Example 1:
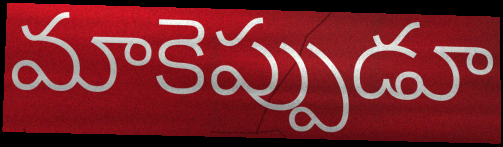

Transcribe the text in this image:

మాకెప్పుడూ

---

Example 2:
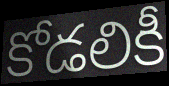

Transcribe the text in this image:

కోడలికీ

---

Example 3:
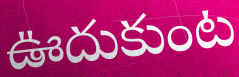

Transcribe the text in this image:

ఊదుకుంట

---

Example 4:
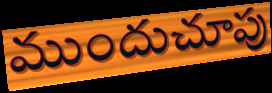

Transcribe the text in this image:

ముందుచూపు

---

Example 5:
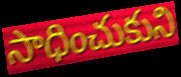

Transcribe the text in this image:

సాధించుకుని